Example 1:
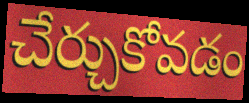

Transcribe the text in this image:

చేర్చుకోవడం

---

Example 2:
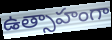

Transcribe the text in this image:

ఉత్సాహంగా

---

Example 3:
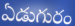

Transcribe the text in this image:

ఏడుగురం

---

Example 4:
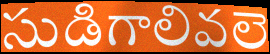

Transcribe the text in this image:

సుడిగాలివలె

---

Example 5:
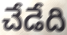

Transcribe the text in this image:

చేడేది